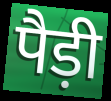
पैड़ी